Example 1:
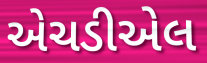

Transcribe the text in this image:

એચડીએલ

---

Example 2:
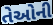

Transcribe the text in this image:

તેઓની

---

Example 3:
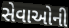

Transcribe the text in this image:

સેવાઓની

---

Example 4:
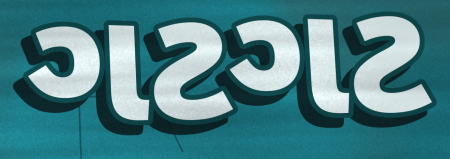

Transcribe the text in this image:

ગટગટ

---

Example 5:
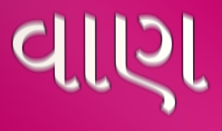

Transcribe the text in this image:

વાણ